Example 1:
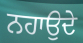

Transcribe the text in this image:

ਨਹਾਉਦੇ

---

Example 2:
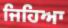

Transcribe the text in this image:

ਜਿਹਿਆ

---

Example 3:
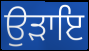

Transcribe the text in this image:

ਉੜਾਇ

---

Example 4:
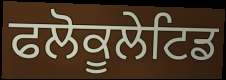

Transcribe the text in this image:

ਫਲੋਕੂਲੇਟਿਡ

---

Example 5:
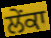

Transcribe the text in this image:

ਲੇਂਕਾ